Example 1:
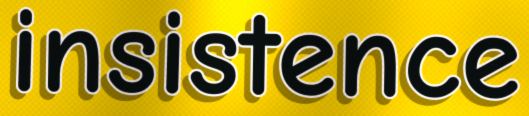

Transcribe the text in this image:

insistence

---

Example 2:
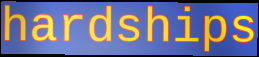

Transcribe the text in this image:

hardships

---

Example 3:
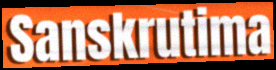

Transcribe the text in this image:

Sanskrutima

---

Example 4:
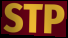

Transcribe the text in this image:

STP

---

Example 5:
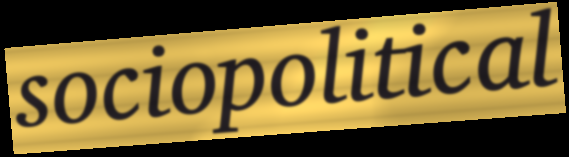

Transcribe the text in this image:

sociopolitical